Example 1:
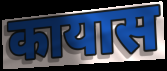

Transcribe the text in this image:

कायास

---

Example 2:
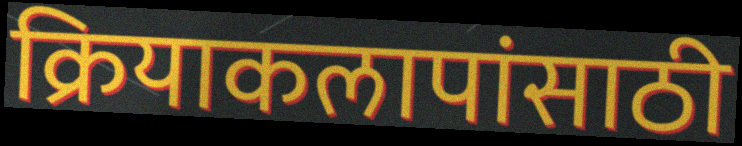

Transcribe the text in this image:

क्रियाकलापांसाठी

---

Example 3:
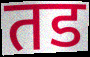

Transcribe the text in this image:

तड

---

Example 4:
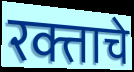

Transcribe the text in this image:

रक्ताचे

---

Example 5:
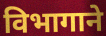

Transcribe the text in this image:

विभागाने